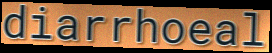
diarrhoeal